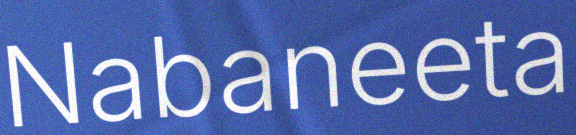
Nabaneeta